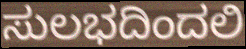
ಸುಲಭದಿಂದಲಿ